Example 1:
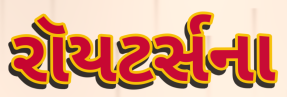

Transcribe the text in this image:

રૉયટર્સના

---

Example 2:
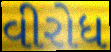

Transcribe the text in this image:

વીરોધ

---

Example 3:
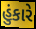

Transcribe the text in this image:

હુંકારે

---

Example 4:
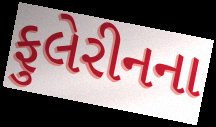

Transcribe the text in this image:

ફુલેરીનના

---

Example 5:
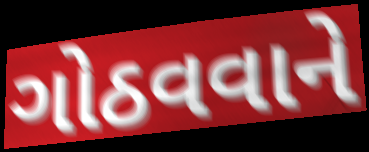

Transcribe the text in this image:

ગોઠવવાને